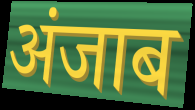
अंजाब